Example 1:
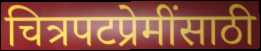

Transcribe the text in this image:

चित्रपटप्रेमींसाठी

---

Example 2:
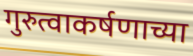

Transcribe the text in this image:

गुरुत्वाकर्षणाच्या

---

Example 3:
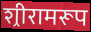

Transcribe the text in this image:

श्रीरामरूप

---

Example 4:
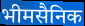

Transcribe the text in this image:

भीमसैनिक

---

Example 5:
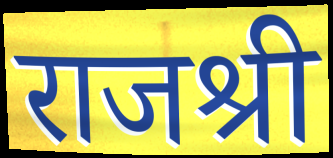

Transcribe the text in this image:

राजश्री